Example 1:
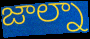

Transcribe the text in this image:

జాల్నా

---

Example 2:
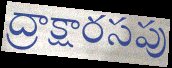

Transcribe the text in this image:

ద్రాక్షారసపు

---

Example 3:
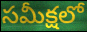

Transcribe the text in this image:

సమీక్షలో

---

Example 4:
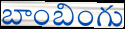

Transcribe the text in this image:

బాంబింగు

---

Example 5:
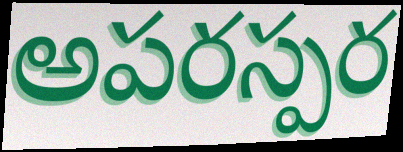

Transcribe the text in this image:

అపరస్పర